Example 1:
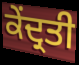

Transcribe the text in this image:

ਕੇਂਦ੍ਰਤੀ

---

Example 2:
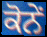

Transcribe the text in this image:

ਕੋਨੇਂ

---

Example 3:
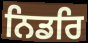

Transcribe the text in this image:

ਨਿਡਰਿ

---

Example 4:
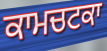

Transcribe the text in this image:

ਕਾਮਚਟਕਾ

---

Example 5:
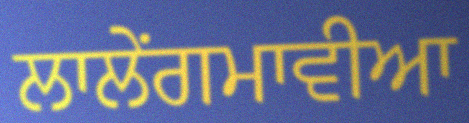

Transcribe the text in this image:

ਲਾਲੇਂਗਮਾਵੀਆ